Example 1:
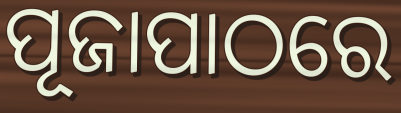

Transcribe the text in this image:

ପୂଜାପାଠରେ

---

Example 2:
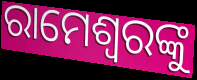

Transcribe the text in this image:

ରାମେଶ୍ୱରଙ୍କୁ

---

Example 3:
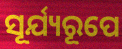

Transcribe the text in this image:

ସୂର୍ଯ୍ୟରୂପେ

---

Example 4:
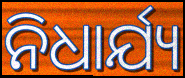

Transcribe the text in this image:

ନିଧାର୍ଯ୍ୟ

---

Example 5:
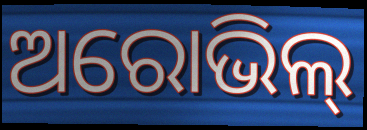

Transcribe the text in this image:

ଅରୋଭିଲ୍